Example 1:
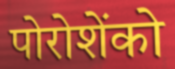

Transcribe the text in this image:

पोरोशेंको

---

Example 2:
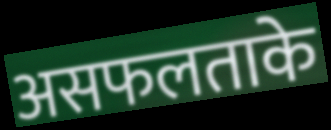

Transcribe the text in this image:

असफलताके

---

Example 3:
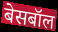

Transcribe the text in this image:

बेसबॉल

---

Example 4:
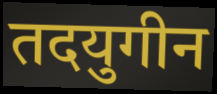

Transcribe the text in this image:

तदयुगीन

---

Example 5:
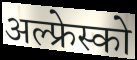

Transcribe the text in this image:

अल्फ्रेस्को